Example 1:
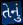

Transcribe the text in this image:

તેનું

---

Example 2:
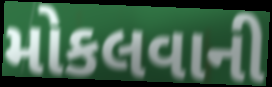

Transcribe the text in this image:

મોકલવાની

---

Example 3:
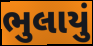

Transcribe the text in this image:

ભુલાયું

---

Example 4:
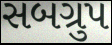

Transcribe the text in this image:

સબગ્રુપ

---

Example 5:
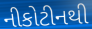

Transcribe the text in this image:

નીકોટીનથી